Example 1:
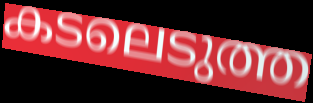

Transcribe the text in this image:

കടലെടുത്ത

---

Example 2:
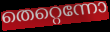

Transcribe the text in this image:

തെറ്റെന്നോ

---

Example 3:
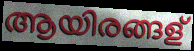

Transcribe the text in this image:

ആയിരങ്ങള്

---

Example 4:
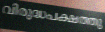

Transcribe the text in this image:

വിരുദ്ധപക്ഷത്തു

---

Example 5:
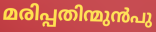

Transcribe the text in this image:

മരിപ്പതിന്മുൻപു